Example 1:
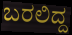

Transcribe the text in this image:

ಬರಲಿದ್ದ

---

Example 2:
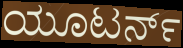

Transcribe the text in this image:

ಯೂಟರ್ನ್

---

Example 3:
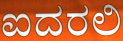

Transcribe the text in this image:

ಐದರಲಿ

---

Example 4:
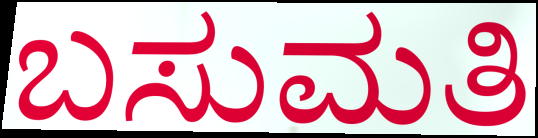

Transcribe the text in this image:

ಬಸುಮತಿ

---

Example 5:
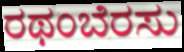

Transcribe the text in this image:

ರಥಂಬೆರಸು